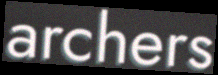
archers